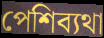
পেশিব্যথা